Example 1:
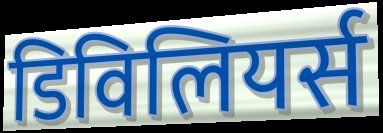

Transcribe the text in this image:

डिविलियर्स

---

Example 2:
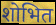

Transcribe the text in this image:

शोभित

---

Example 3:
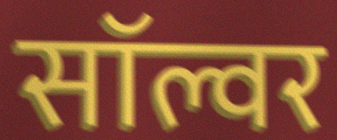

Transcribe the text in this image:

सॉल्वर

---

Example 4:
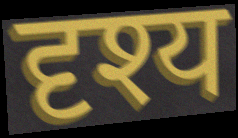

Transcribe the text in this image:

दृश्‍य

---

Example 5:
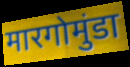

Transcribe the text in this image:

मारगोमुंडा